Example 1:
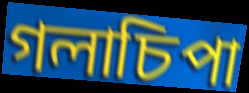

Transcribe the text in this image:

গলাচিপা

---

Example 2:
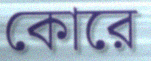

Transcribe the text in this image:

কোরে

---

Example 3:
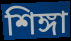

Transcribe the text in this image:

শিঙ্গা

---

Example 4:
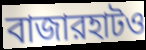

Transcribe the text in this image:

বাজারহাটও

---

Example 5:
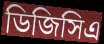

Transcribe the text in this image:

ডিজিসিএ